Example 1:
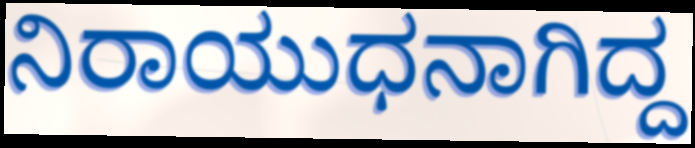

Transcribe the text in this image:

ನಿರಾಯುಧನಾಗಿದ್ದ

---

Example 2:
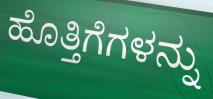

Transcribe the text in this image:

ಹೊತ್ತಿಗೆಗಳನ್ನು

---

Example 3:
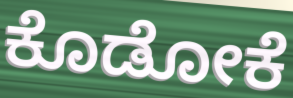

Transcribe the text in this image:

ಕೊಡೋಕೆ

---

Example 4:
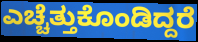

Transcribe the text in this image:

ಎಚ್ಚೆತ್ತುಕೊಂಡಿದ್ದರೆ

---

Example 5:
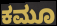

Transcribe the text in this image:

ಕಮೂ